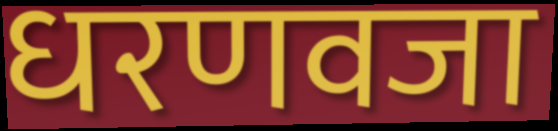
धरणवजा